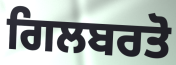
ਗਿਲਬਰਤੋ